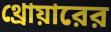
থ্রোয়ারের